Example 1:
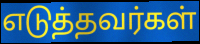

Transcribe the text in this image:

எடுத்தவர்கள்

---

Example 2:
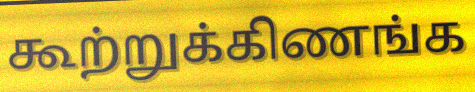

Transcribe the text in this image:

கூற்றுக்கிணங்க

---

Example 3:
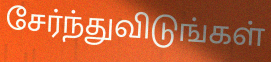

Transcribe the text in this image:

சேர்ந்துவிடுங்கள்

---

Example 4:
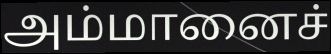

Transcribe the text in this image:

அம்மானைச்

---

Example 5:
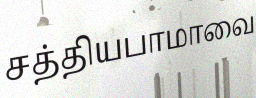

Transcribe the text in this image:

சத்தியபாமாவை